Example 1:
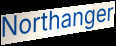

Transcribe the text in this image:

Northanger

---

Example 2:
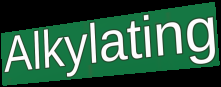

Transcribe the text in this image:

Alkylating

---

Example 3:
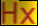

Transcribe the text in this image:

Hx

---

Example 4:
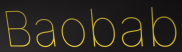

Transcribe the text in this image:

Baobab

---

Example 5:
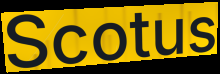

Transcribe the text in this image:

Scotus